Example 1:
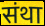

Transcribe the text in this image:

संथा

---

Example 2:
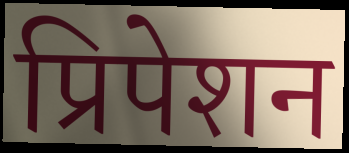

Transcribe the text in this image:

प्रिपेशन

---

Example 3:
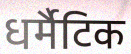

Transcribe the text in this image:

धर्मैटिक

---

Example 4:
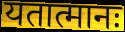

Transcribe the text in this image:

यतात्मानः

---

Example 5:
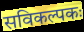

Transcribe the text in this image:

सविकल्पकः